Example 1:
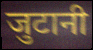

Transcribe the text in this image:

जुटानी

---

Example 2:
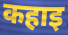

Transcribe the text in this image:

कहाइ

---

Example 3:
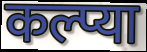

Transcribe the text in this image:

कल्प्या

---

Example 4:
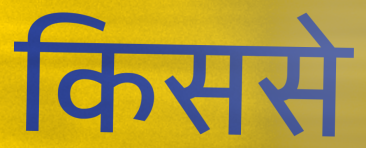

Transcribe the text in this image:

किससे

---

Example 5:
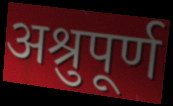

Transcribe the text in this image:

अश्रुपूर्ण